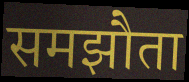
समझौता